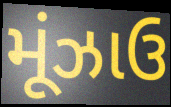
મૂંઝાઉ